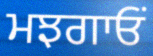
ਮਝਗਾਓਂ